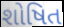
શોષિત